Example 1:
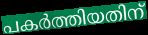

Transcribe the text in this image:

പകർത്തിയതിന്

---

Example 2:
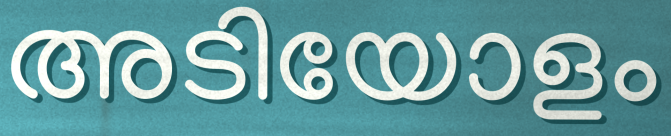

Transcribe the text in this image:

അടിയോളം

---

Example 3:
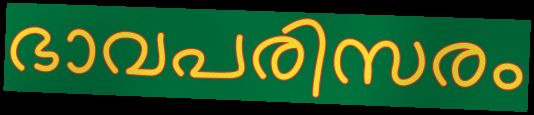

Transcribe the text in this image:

ഭാവപരിസരം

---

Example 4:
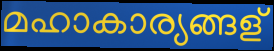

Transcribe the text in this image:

മഹാകാര്യങ്ങള്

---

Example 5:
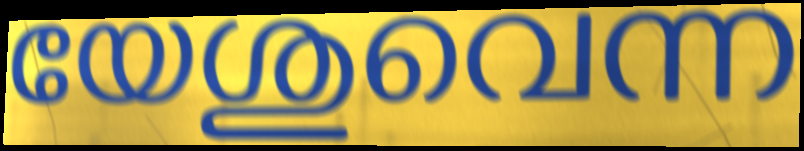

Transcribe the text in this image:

യേശുവെന്ന